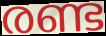
രണ്ട